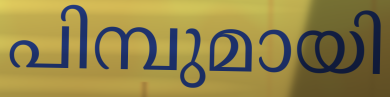
പിമ്പുമായി